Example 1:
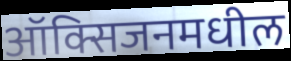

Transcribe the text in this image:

ऑक्सिजनमधील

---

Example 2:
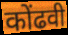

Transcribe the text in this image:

कोंढवी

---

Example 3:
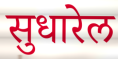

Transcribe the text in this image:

सुधारेल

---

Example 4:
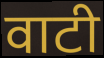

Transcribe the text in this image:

वाटी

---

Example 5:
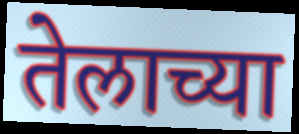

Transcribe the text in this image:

तेलाच्या